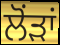
ਲੋਂੜਾਂ